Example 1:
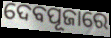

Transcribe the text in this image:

ଦେବପୂଜାରେ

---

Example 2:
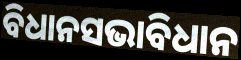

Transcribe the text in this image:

ବିଧାନସଭାବିଧାନ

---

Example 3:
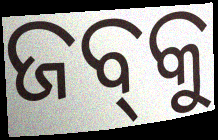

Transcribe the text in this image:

ଜବ୍‍କୁ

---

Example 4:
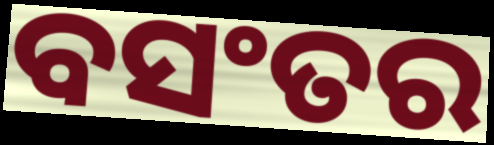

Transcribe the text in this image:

ବସଂତର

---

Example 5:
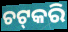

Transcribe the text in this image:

ଚଟ୍‌କରି